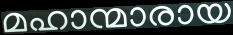
മഹാന്മാരായ